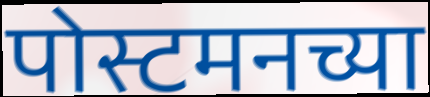
पोस्टमनच्या